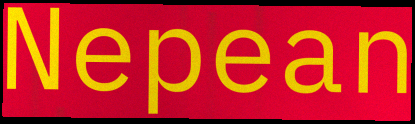
Nepean